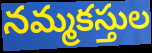
నమ్మకస్తుల